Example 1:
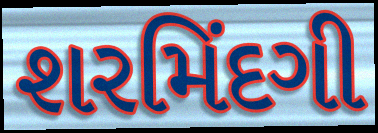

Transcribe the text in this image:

શરમિંદગી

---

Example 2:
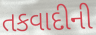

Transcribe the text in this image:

તકવાદીની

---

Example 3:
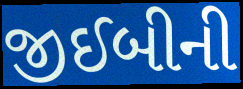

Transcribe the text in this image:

જીઈબીની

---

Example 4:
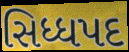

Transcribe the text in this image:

સિધ્ધપદ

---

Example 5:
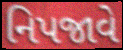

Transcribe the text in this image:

નિપજાવે